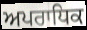
ਅਪਰਾਧਿਕ